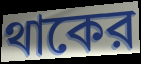
থাকের